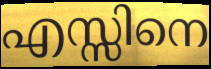
എസ്സിനെ